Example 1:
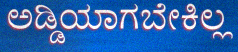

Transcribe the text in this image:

ಅಡ್ಡಿಯಾಗಬೇಕಿಲ್ಲ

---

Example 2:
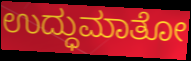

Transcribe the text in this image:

ಉದ್ಧುಮಾತೋ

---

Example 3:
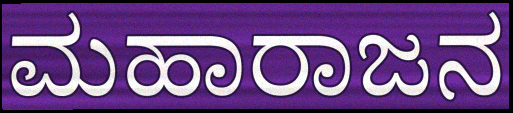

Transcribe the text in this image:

ಮಹಾರಾಜನ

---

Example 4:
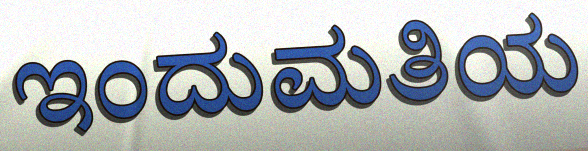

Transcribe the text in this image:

ಇಂದುಮತಿಯ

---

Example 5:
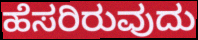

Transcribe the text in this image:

ಹೆಸರಿರುವುದು